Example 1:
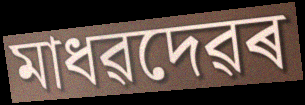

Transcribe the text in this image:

মাধৱদেৱৰ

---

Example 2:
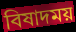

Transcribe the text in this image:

বিষাদময়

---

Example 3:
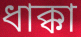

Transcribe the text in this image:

ধাক্কা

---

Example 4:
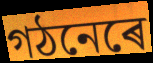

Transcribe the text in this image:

গঠনেৰে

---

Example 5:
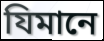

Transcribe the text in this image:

যিমানে